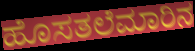
ಹೊಸತಲೆಮಾರಿನ